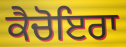
ਕੈਚੋਇਰਾ